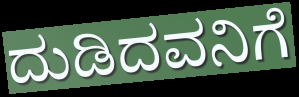
ದುಡಿದವನಿಗೆ